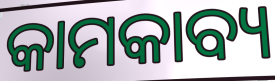
କାମକାବ୍ୟ